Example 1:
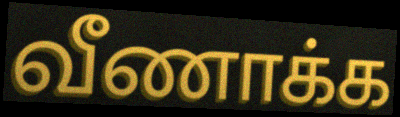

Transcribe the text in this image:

வீணாக்க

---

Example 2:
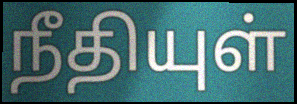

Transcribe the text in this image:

நீதியுள்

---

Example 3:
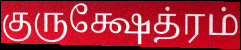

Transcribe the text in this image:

குருக்ஷேத்ரம்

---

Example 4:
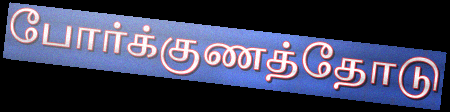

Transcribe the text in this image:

போர்க்குணத்தோடு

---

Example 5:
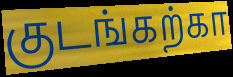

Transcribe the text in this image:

குடங்கற்கா